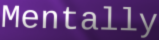
Mentally